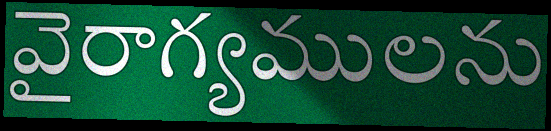
వైరాగ్యములను